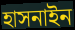
হাসনাইন